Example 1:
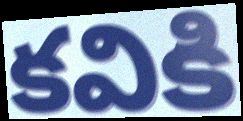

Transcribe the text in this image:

కవికి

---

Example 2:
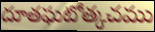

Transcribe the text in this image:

దూతఘటోత్కచము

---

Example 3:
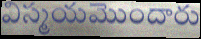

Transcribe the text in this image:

విస్మయమొందారు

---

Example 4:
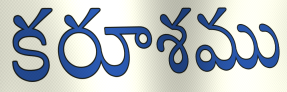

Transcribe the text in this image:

కరూశము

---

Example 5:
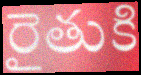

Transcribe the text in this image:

రైతుకి